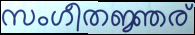
സംഗീതജ്ഞര്